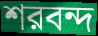
শরবন্দ